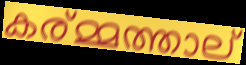
കര്മ്മത്താല്